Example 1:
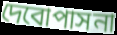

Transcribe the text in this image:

দেবোপাসনা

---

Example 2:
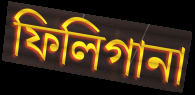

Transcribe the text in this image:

ফিলিগানা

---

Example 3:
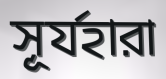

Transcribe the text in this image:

সূর্যহারা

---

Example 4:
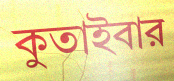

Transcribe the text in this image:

কুতাইবার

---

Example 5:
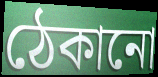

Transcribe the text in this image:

ঠেকানো